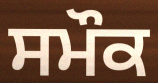
ਸਮੌਕ